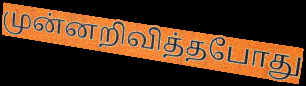
முன்னறிவித்தபோது